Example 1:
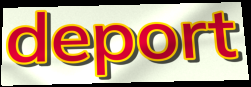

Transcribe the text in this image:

deport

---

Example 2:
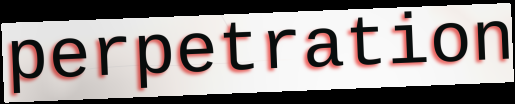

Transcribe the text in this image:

perpetration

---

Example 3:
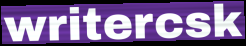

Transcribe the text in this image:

writercsk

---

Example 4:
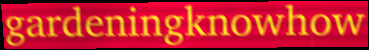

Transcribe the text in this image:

gardeningknowhow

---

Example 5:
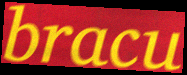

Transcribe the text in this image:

bracu